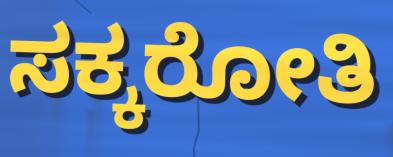
ಸಕ್ಕರೋತಿ